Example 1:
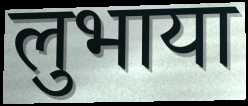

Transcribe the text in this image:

लुभाया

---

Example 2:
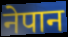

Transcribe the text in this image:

नेपान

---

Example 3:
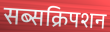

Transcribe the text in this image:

सब्सक्रिपशन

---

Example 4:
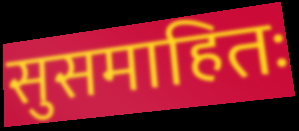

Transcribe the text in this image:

सुसमाहितः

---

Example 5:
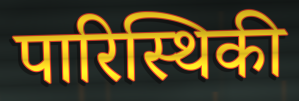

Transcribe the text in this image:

पारिस्थिकी